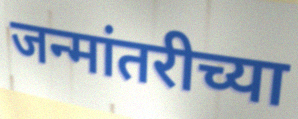
जन्मांतरीच्या